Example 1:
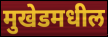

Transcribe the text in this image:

मुखेडमधील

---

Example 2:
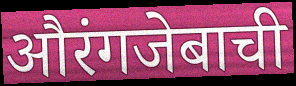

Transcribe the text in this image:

औरंगजेबाची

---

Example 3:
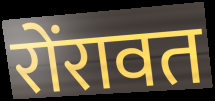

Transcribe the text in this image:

रोंरावत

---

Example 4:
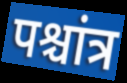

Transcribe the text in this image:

पश्चांत्र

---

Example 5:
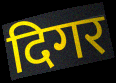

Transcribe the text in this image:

दिगर